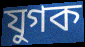
যুগক